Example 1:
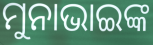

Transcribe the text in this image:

ମୁନାଭାଇଙ୍କ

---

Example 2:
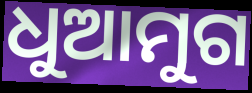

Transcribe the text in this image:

ଧୁଆମୁଗ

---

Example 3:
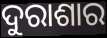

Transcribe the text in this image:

ଦୁରାଶାର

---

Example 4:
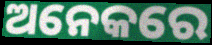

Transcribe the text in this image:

ଅନେକରେ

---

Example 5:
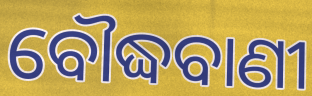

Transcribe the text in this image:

ବୌଦ୍ଧବାଣୀ